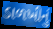
ડાળખીનું